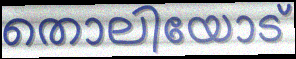
തൊലിയോട്